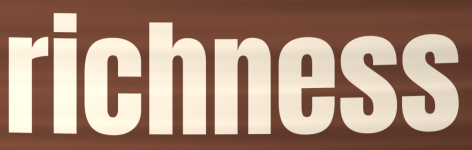
richness